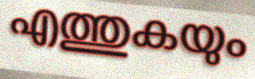
എത്തുകയും